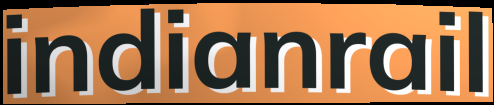
indianrail